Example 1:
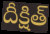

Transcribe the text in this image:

దీక్షిత్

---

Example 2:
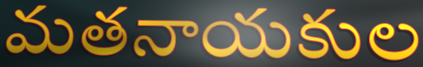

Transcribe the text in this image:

మతనాయకుల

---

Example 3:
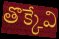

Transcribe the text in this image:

తొక్కేవి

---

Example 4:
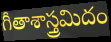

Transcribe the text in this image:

గీతాశాస్త్రమిదం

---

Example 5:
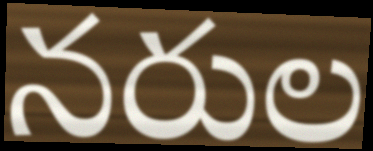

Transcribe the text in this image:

నరుల